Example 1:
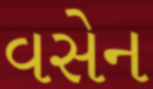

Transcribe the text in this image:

વસેન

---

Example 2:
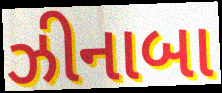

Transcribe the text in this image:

ઝીનાબા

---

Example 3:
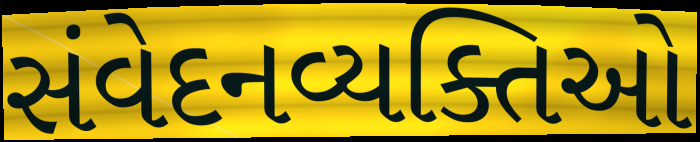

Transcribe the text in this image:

સંવેદનવ્યક્તિઓ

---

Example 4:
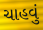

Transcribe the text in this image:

ચાહવું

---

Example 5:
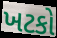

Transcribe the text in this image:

ખટકો